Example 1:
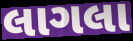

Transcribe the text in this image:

લાગલા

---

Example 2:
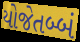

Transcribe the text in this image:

યોજેતબ્બં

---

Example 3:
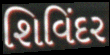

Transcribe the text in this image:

શિવિંદર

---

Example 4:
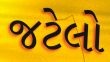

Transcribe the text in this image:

જટેલો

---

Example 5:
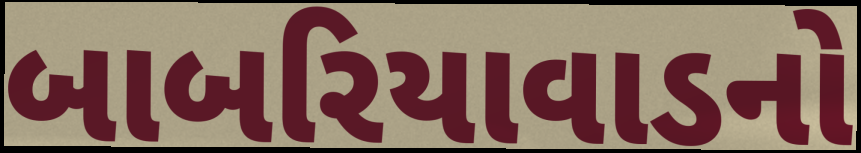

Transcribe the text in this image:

બાબરિયાવાડનો